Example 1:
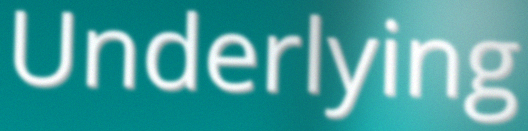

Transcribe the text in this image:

Underlying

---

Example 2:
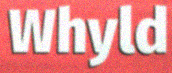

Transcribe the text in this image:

Whyld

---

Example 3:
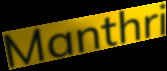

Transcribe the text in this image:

Manthri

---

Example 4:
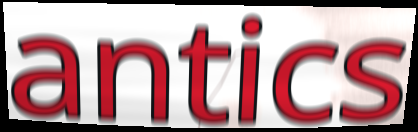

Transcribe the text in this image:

antics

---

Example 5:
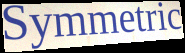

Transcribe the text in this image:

Symmetric